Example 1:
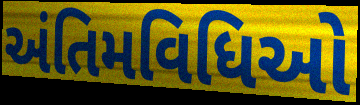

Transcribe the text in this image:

અંતિમવિધિઓ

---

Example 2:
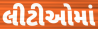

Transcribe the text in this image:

લીટીઓમાં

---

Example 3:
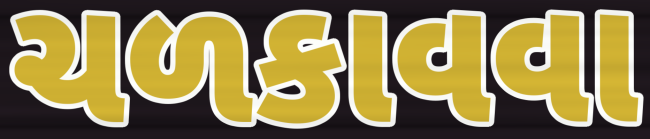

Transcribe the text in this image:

ચળકાવવા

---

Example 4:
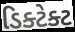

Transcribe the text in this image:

ડિક્ટેક્ટ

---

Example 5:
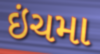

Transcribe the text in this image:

ઇંચમા